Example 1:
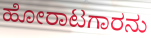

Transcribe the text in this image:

ಹೋರಾಟಗಾರನು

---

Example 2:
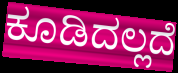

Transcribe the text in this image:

ಕೂಡಿದಲ್ಲದೆ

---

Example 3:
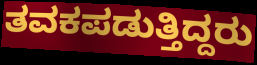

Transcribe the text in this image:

ತವಕಪಡುತ್ತಿದ್ದರು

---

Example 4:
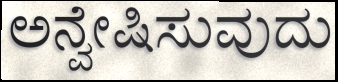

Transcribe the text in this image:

ಅನ್ವೇಷಿಸುವುದು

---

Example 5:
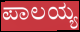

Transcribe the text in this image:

ಪಾಲಯ್ಯ